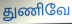
துணிவே